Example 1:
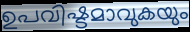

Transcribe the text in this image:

ഉപവിഷ്ടമാവുകയും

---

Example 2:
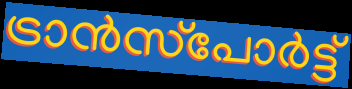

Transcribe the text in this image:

ട്രാൻസ്‌പോർട്ട്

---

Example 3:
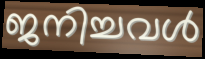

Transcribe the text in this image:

ജനിച്ചവൾ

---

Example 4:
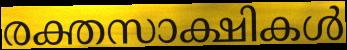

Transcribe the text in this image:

രക്തസാക്ഷികൾ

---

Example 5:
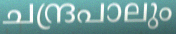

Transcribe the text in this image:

ചന്ദ്രപാലും